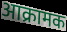
आक्रामक